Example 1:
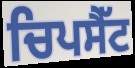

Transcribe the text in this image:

ਚਿਪਸੈੱਟ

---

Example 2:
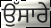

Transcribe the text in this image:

ਉੱਸਾਰੇ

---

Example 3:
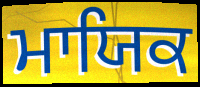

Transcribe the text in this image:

ਮਾਯਿਕ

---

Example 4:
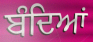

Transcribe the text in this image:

ਬੰਦਿਆਂ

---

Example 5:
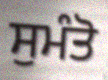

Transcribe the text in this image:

ਸੁਮੰਤੋ